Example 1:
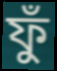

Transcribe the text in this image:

ফুঁ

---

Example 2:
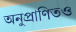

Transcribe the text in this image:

অনুপ্রাণিতও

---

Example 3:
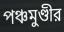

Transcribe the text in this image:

পঞ্চমুণ্ডীর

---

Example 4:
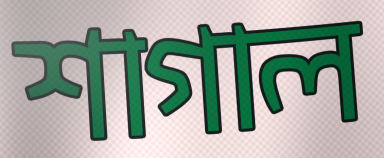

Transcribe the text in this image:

শাগাল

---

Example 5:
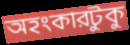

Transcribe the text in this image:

অহংকারটুকু